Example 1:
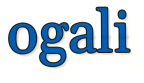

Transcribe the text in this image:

ogali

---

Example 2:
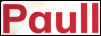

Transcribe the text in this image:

Paull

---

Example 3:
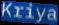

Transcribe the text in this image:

Kriya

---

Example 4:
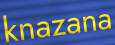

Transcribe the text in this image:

knazana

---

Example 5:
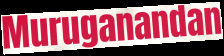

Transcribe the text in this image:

Muruganandan